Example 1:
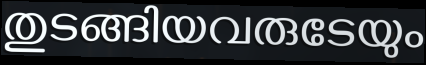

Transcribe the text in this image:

തുടങ്ങിയവരുടേയും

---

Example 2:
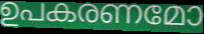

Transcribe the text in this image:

ഉപകരണമോ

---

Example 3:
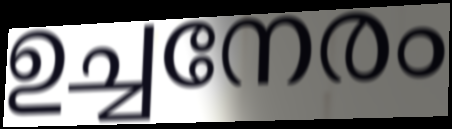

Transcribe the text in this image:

ഉച്ചനേരം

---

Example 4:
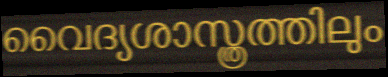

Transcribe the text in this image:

വൈദ്യശാസ്ത്രത്തിലും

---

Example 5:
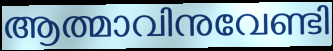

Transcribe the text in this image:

ആത്മാവിനുവേണ്ടി